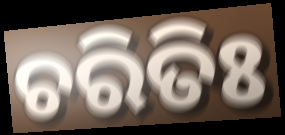
ଚରିତିଃ